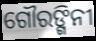
ଗୌରଙ୍ଗିନୀ